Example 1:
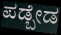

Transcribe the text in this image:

ಪಡ್ಬೇಡ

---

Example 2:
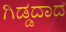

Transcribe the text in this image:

ಗಿಡ್ಡದಾದ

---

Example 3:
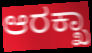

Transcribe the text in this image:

ಆರಕ್ಖಾ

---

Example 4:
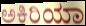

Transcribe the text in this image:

ಅಕಿರಿಯಾ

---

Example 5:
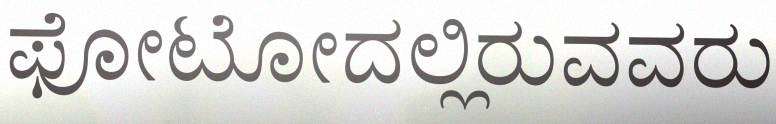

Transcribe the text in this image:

ಫೋಟೋದಲ್ಲಿರುವವರು